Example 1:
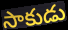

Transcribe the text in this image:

సాకుడు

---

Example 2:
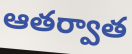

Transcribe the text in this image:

ఆతర్వాత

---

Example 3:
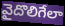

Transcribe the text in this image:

వైదొలిగేలా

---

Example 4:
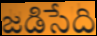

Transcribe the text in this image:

జడిసేది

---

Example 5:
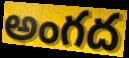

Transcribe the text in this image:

అంగద